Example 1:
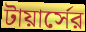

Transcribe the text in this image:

টায়ার্সের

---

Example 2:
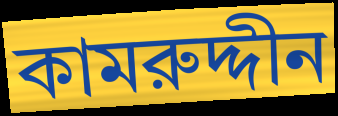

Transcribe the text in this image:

কামরুদ্দীন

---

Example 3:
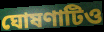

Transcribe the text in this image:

ঘোষণাটিও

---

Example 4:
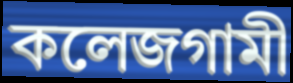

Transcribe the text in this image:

কলেজগামী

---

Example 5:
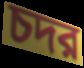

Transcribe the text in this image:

চদর